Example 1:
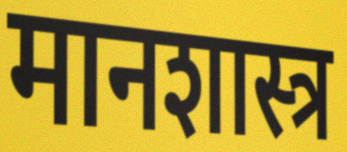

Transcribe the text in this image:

मानशास्त्र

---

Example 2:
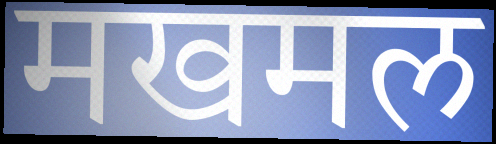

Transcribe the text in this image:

मखमल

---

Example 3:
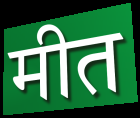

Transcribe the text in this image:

मीत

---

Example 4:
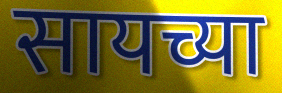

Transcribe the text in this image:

सायच्या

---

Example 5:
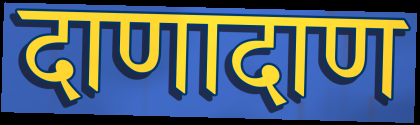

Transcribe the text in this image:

दाणादाण